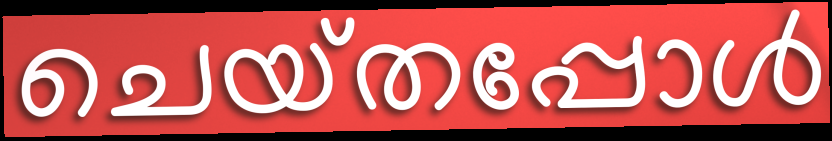
ചെയ്‌തപ്പോൾ